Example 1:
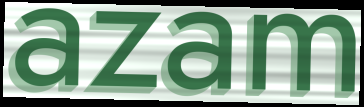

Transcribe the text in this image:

azam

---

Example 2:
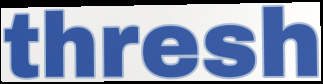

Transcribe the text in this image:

thresh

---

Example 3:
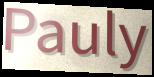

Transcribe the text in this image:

Pauly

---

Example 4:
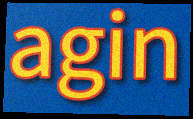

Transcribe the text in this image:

agin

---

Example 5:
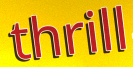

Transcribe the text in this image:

thrill